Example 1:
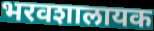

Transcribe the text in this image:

भरवशालायक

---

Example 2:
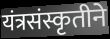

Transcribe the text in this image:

यंत्रसंस्कृतीने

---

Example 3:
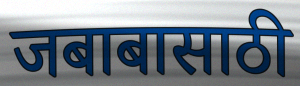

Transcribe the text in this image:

जबाबासाठी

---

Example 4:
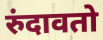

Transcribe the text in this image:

रुंदावतो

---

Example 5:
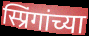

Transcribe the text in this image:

स्प्रिंगांच्या